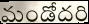
మండోదరి